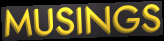
MUSINGS